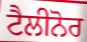
ਟੈਲੀਨੋਰ